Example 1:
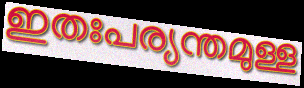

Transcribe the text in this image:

ഇതഃപര്യന്തമുള്ള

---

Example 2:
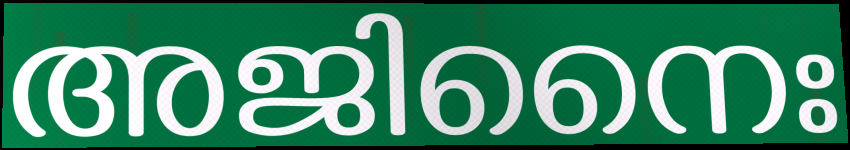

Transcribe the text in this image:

അജിനൈഃ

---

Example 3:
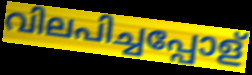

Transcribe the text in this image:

വിലപിച്ചപ്പോള്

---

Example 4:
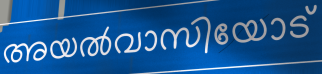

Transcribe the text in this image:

അയൽവാസിയോട്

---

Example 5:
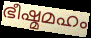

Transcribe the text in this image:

ഭീഷ്മമഹം